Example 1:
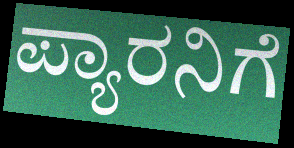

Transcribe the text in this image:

ಪ್ಯಾರನಿಗೆ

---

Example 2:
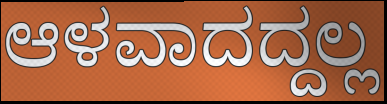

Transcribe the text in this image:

ಆಳವಾದದ್ದಲ್ಲ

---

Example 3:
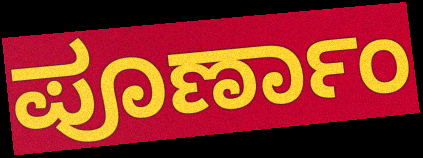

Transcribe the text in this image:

ಪೂರ್ಣಾಂ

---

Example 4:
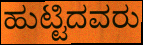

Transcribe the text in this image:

ಹುಟ್ಟಿದವರು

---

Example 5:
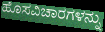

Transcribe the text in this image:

ಹೊಸವಿಚಾರಗಳನ್ನು